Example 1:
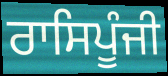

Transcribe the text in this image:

ਰਾਸਿਪੂੰਜੀ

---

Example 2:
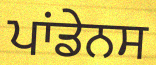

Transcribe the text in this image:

ਪਾਂਡੇਨਸ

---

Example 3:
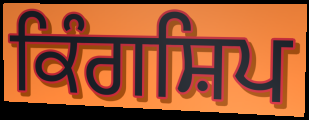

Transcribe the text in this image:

ਕਿੰਗਸ਼ਿਪ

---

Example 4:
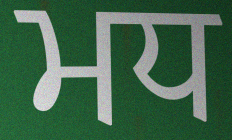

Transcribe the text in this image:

ਮਧ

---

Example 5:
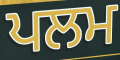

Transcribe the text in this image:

ਪਲਮ